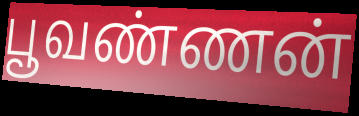
பூவண்ணன்